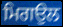
ਮਿਗਉਲ